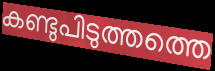
കണ്ടുപിടുത്തത്തെ